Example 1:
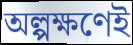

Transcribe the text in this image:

অল্পক্ষণেই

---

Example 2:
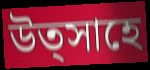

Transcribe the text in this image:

উত্সাহে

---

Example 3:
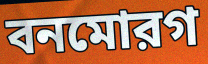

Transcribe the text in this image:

বনমোরগ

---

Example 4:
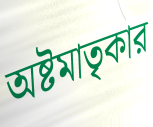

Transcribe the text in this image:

অষ্টমাতৃকার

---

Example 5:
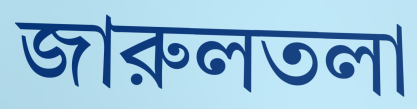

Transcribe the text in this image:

জারুলতলা